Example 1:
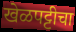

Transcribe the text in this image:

खेळपट्टीचा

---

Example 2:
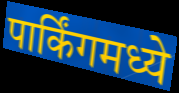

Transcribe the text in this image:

पार्किंगमध्ये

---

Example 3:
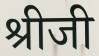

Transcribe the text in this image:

श्रीजी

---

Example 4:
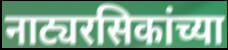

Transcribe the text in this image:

नाट्यरसिकांच्या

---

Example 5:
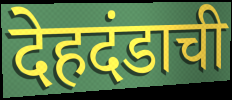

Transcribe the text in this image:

देहदंडाची